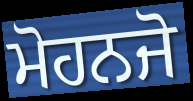
ਮੋਹਨਜੋ